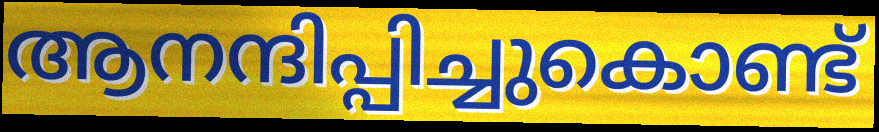
ആനന്ദിപ്പിച്ചുകൊണ്ട്